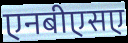
एनबीएसए